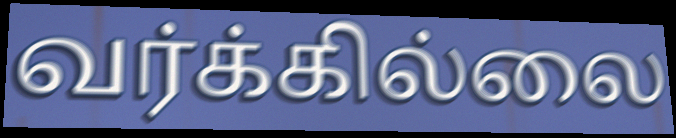
வர்க்கில்லை